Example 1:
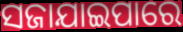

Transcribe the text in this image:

ସଜାଯାଇପାରେ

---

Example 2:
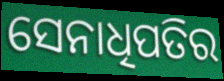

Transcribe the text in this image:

ସେନାଧିପତିର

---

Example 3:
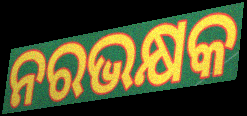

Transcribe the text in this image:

ନରଭକ୍ଷକ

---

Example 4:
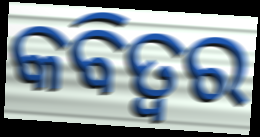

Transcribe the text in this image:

କବିତ୍ଵର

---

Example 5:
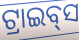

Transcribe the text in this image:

ଟ୍ରାଇବ୍‌ସ